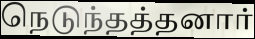
நெடுந்தத்தனார்